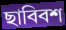
ছাবিবশ